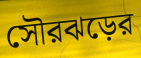
সৌরঝড়ের